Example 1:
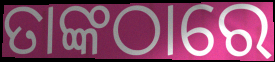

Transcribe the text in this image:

ତାଙ୍କଠାରେ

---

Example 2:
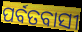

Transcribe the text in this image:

ପର୍ବତବାସୀ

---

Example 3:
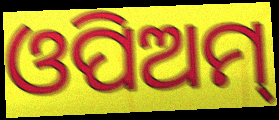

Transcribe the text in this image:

ଓପିଅମ୍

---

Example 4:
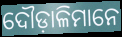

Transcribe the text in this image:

ଦୌଡ଼ାଳିମାନେ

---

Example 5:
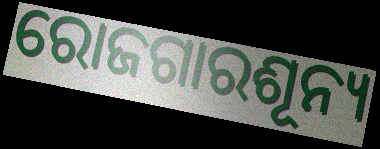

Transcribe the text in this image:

ରୋଜଗାରଶୂନ୍ୟ